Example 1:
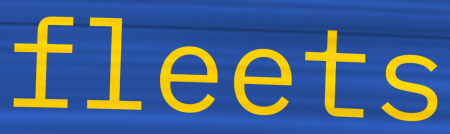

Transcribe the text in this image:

fleets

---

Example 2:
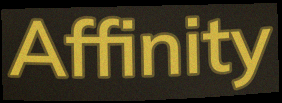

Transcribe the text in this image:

Affinity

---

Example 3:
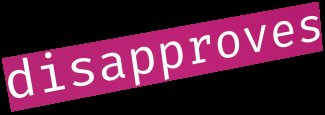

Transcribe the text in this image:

disapproves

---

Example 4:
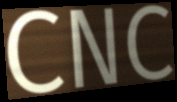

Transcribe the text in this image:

CNC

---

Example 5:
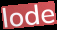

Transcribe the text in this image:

lode